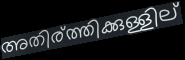
അതിര്ത്തിക്കുള്ളില്